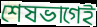
শেষভাগেই